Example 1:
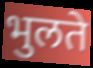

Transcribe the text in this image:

भुलते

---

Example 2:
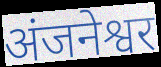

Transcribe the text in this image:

अंजनेश्वर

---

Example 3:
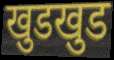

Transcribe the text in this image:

खुडखुड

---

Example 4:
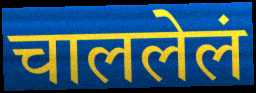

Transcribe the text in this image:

चाललेलं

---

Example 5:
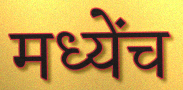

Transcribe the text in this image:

मध्येंच